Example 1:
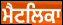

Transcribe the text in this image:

ਮੈਟਲਿਕਾ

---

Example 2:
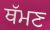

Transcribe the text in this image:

ਥੱਮਣ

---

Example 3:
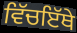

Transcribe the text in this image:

ਵਿੱਚਇੱਥੇ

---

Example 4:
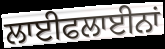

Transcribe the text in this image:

ਲਾਈਫਲਾਈਨਾਂ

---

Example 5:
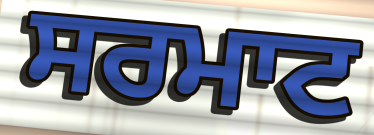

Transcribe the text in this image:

ਸਰਮਾਟ